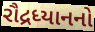
રૌદ્રધ્યાનનો